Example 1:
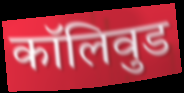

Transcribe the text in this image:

कॉलिवुड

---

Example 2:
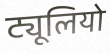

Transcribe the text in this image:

ट्यूलियो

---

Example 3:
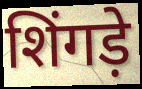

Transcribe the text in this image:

शिंगड़े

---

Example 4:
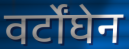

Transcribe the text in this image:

वर्टोंघेन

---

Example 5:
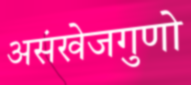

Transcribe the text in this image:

असंखेजगुणो